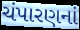
ચંપારણનાં